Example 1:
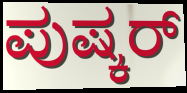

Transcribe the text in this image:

ಪುಷ್ಕರ್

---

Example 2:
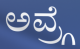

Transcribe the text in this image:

ಅವ್ರ್ಗೆ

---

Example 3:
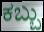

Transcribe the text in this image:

ಕಬ್ಬು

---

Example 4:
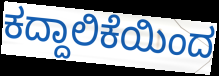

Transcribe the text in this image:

ಕದ್ದಾಲಿಕೆಯಿಂದ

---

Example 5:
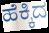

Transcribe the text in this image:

ಹೆಕ್ಕಿದ